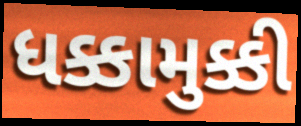
ધક્કામુક્કી